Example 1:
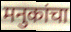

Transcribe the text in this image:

मनुकांचा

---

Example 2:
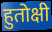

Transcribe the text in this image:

हुतोक्षी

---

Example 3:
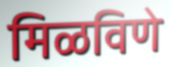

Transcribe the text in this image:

मिळविणे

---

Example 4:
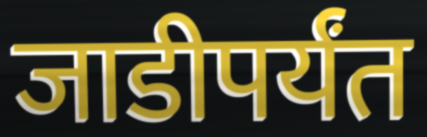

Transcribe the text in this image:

जाडीपर्यंत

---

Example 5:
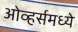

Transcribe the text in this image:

ओव्हर्समध्ये